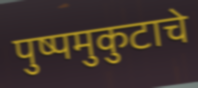
पुष्पमुकुटाचे